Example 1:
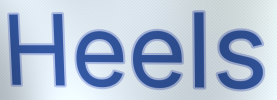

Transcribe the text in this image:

Heels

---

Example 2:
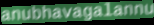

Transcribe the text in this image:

anubhavagalannu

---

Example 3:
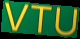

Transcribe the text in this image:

VTU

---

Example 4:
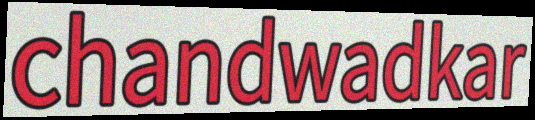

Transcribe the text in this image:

chandwadkar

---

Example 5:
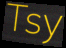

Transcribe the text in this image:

Tsy